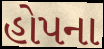
હોપના